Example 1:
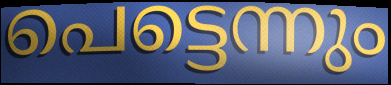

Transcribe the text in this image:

പെട്ടെന്നും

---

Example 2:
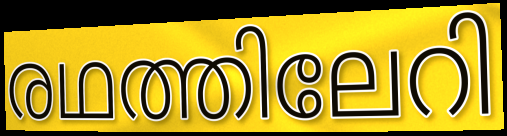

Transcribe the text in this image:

രഥത്തിലേറി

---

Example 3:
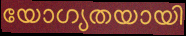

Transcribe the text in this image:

യോഗ്യതയായി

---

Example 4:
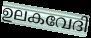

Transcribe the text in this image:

ഉലകവേദി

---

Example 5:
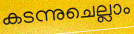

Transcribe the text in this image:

കടന്നുചെല്ലാം